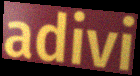
adivi